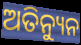
ଅତିନ୍ୟୁନ